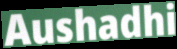
Aushadhi